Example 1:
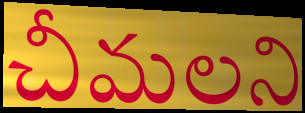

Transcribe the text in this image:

చీమలని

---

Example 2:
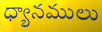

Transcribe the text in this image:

ధ్యానములు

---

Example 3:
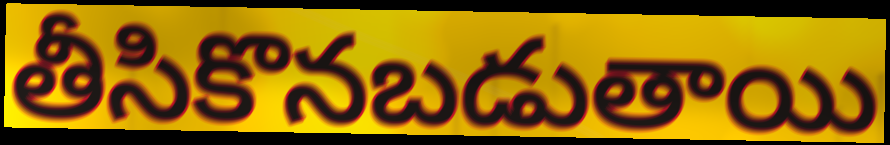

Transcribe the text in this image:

తీసికొనబడుతాయి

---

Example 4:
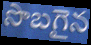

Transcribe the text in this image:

సొబగైన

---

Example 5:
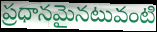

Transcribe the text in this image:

ప్రధానమైనటువంటి